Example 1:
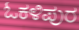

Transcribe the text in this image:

ಓಕಳಿಪುರ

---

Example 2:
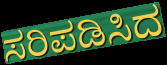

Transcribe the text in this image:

ಸರಿಪಡಿಸಿದ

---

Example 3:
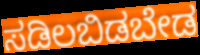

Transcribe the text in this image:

ಸಡಿಲಬಿಡಬೇಡ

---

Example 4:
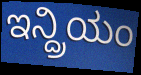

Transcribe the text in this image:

ಇನ್ದ್ರಿಯಂ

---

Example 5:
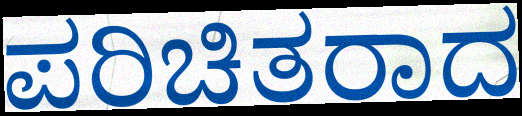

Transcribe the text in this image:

ಪರಿಚಿತರಾದ